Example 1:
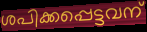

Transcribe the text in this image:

ശപിക്കപ്പെട്ടവന്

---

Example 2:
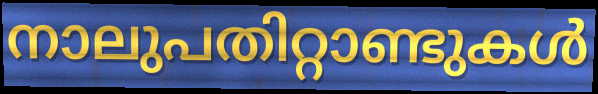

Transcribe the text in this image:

നാലുപതിറ്റാണ്ടുകൾ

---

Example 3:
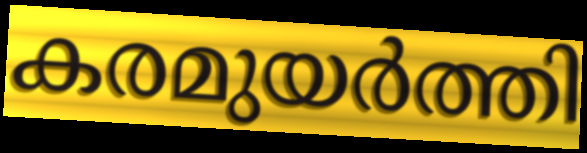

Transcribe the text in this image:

കരമുയർത്തി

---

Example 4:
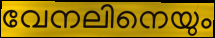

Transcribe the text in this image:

വേനലിനെയും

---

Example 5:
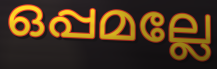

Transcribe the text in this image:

ഒപ്പമല്ലേ